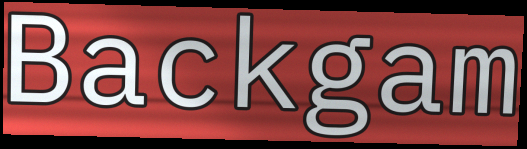
Backgam